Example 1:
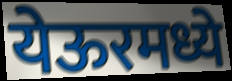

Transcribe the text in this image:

येऊरमध्ये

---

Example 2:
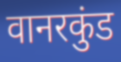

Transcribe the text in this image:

वानरकुंड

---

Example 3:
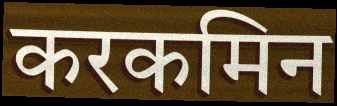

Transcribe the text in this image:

करकमिन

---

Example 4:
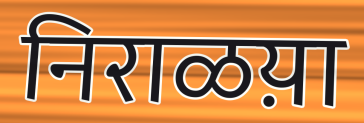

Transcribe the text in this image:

निराळय़ा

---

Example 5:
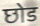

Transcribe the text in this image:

छोड